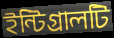
ইন্টিগ্রালটি